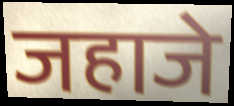
जहाजे